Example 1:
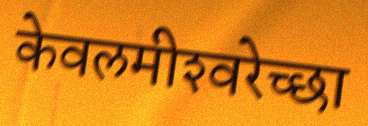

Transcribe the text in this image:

केवलमीश्वरेच्छा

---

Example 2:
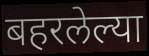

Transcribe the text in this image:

बहरलेल्या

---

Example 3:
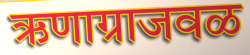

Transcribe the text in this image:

ऋणाग्राजवळ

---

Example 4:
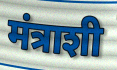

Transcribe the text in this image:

मंत्राशी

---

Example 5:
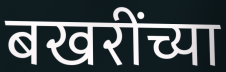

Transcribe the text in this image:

बखरींच्या